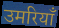
उमरियाँ